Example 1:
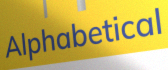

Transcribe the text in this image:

Alphabetical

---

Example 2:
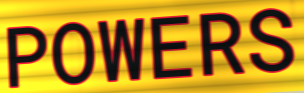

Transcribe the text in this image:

POWERS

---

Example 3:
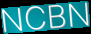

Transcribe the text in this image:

NCBN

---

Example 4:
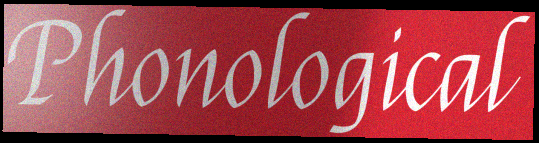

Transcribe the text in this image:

Phonological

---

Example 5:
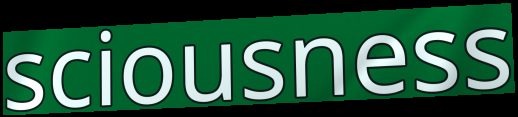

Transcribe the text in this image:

sciousness